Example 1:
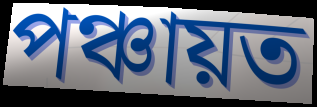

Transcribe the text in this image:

পঞ্চায়ত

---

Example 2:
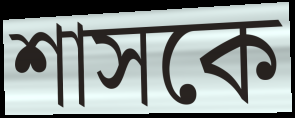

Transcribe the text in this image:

শাসকে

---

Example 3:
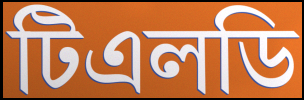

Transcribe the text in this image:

টিএলডি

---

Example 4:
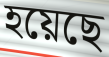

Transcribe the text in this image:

হয়েছে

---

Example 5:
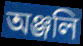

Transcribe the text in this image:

অঞ্জলি